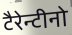
टैरेन्टीनो